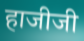
हाजीजी